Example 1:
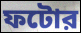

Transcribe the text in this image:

ফটোর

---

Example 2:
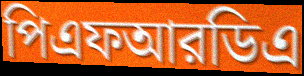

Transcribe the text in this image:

পিএফআরডিএ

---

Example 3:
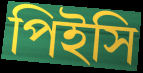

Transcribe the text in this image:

পিইসি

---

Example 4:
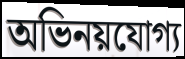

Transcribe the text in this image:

অভিনয়যোগ্য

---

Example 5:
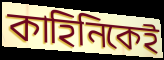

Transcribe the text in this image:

কাহিনিকেই